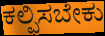
ಕಲ್ಪಿಸಬೇಕು